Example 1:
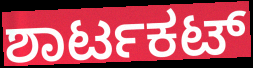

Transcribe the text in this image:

ಶಾರ್ಟಕಟ್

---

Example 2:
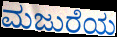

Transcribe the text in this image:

ಮಜುರೆಯ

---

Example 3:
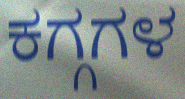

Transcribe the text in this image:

ಕಗ್ಗಗಳ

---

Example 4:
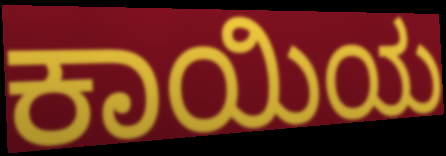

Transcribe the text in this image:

ಕಾಯಿಯ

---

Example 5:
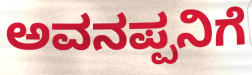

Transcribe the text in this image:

ಅವನಪ್ಪನಿಗೆ